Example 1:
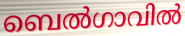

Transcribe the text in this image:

ബെൽഗാവിൽ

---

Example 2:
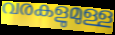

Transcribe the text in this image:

വരകളുമുള്ള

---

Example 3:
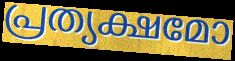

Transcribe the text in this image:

പ്രത്യക്ഷമോ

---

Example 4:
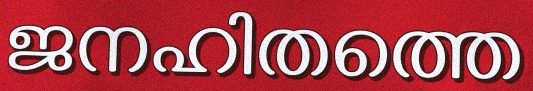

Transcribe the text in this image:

ജനഹിതത്തെ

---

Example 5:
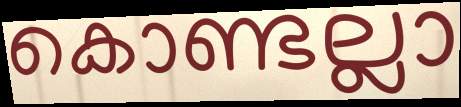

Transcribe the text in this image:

കൊണ്ടല്ലാ